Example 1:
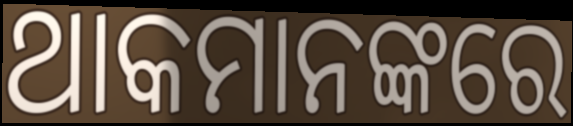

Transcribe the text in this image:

ଥାକମାନଙ୍କରେ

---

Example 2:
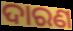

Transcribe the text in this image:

ଦାରଣ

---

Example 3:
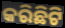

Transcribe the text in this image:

କରିଛିଟି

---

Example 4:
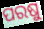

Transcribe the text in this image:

ପରଷୁ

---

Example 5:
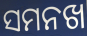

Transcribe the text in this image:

ସମନଖ